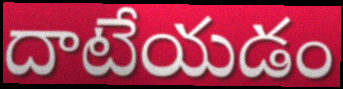
దాటేయడం